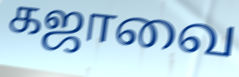
கஜாவை